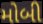
મોબી